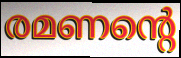
രമണന്റെ